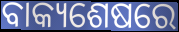
ବାକ୍ୟଶେଷରେ